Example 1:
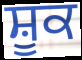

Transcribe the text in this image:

ਸ਼ੂਕ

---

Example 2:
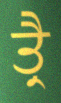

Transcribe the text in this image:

ਤ੍ਰੈ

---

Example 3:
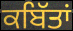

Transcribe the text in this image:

ਕਬਿੱਤਾਂ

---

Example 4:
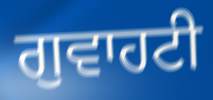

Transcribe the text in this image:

ਗੁਵਾਹਟੀ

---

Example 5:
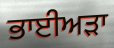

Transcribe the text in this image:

ਭਾਈਅੜਾ